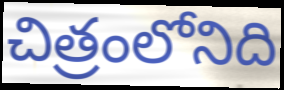
చిత్రంలోనిది